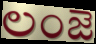
లంజె